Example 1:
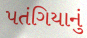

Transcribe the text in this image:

પતંગિયાનું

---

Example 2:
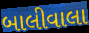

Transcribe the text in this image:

બાલીવાલા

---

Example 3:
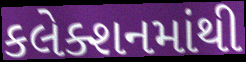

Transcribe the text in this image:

કલેક્શનમાંથી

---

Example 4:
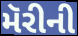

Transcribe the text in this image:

મૅરીની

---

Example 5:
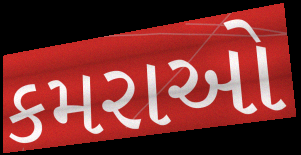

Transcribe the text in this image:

કમરાઓ